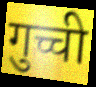
गुच्ची